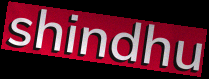
shindhu